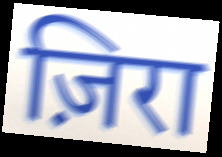
ज़िरा